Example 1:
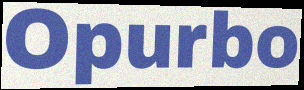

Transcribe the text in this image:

Opurbo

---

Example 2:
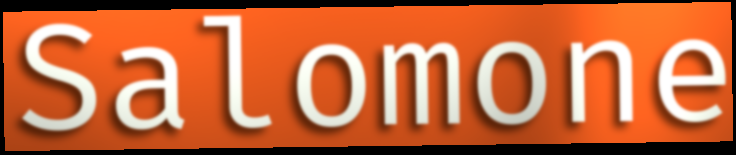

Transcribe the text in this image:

Salomone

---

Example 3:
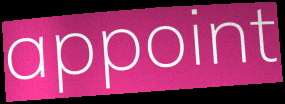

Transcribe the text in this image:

appoint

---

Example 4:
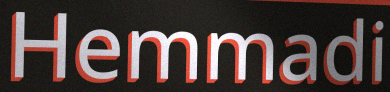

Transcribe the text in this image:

Hemmadi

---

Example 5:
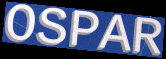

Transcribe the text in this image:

OSPAR